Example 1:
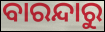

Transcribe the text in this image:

ବାରନ୍ଦାରୁ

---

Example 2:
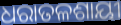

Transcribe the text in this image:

ଧରାତଳଶାୟୀ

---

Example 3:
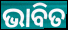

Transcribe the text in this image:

ଭାବିତ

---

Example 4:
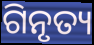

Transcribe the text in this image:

ଗିନୃତ୍ୟ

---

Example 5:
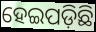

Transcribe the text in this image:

ହେଇପଡ଼ିଛି